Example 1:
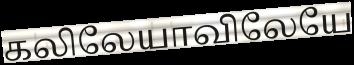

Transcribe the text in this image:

கலிலேயாவிலேயே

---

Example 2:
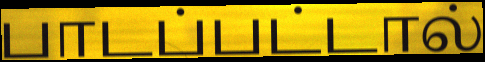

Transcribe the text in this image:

பாடப்பட்டால்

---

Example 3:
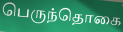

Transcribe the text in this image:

பெருந்தொகை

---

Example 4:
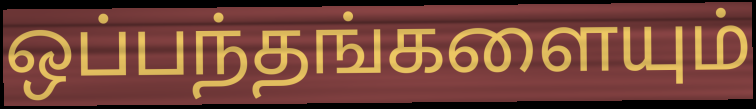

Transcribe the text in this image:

ஒப்பந்தங்களையும்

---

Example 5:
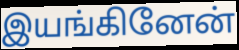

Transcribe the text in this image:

இயங்கினேன்